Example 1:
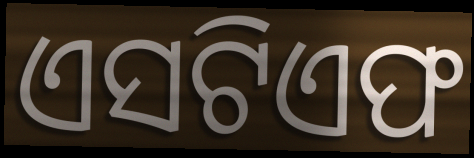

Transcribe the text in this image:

ଏସଟିଏଫ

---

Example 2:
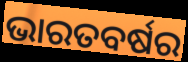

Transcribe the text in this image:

ଭାରତବର୍ଷର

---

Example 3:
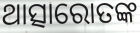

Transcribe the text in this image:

ଥାତ୍ସାରୋତଙ୍କ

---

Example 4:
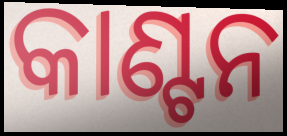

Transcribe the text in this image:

କାଣ୍ଟନ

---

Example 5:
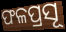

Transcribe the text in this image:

ଫଳପ୍ରସୂ